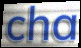
cha